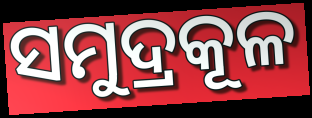
ସମୁଦ୍ରକୂଳ